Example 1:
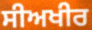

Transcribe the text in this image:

ਸੀਅਖੀਰ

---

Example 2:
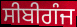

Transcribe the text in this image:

ਸੀਬੀਗੰਜ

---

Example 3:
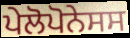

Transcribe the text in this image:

ਪੇਲੋਪੋਨੇਸਸ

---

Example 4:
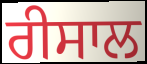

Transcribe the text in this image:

ਰੀਸਾਲ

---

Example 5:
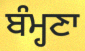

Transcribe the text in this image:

ਬੰਮ੍ਹਣਾ